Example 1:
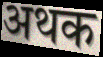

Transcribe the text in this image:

अथक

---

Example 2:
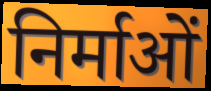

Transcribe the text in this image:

निर्माओं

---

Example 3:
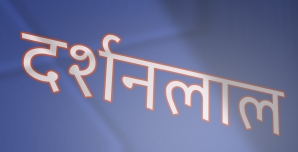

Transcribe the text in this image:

दर्शनलाल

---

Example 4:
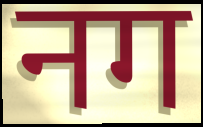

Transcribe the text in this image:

नग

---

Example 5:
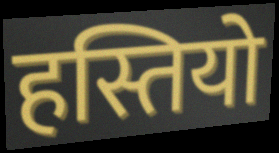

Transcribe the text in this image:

हस्तियो